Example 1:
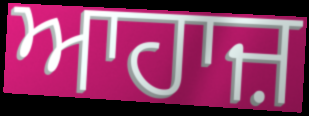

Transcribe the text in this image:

ਆਹਾਜ਼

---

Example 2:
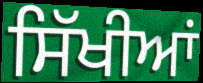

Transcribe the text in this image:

ਸਿੱਖੀਆਂ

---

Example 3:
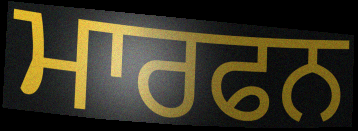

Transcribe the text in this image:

ਮਾਰਫਨ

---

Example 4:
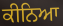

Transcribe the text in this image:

ਕੀਨਿਆ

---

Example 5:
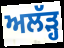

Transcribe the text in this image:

ਅਲੱੜ੍ਹ